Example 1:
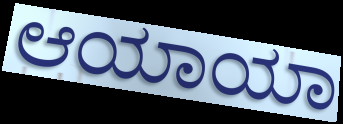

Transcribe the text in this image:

ಆಯಾಯಾ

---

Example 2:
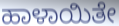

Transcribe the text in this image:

ಹಾಳಾಯಿತೇ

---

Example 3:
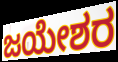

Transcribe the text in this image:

ಜಯೇಶರ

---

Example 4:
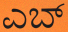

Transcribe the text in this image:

ಎಬ್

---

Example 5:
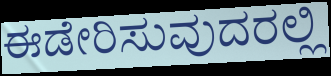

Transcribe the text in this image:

ಈಡೇರಿಸುವುದರಲ್ಲಿ